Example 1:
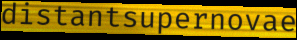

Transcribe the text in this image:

distantsupernovae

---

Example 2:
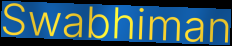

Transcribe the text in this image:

Swabhiman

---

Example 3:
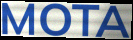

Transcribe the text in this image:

MOTA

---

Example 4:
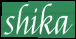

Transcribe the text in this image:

shika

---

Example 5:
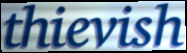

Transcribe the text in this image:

thievish